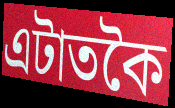
এটাতকৈ